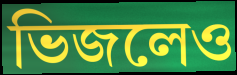
ভিজলেও